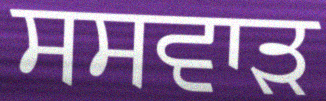
ਸਸਵਾੜ